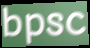
bpsc